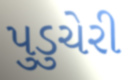
પુડુચેરી